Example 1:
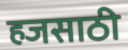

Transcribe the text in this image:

हजसाठी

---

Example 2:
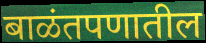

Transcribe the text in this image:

बाळंतपणातील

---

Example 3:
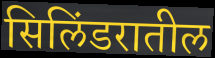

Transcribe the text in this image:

सिलिंडरातील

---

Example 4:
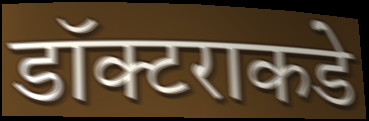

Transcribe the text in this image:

डॉक्टराकडे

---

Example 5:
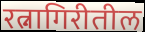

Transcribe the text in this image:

रत्नागिरीतील